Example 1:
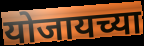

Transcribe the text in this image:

योजायच्या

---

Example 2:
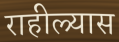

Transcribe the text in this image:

राहील्यास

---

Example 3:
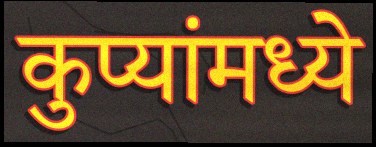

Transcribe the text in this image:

कुप्यांमध्ये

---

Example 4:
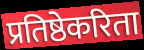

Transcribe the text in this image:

प्रतिष्ठेकरिता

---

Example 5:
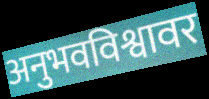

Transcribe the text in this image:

अनुभवविश्वावर